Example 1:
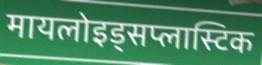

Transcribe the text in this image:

मायलोइड्सप्लास्टिक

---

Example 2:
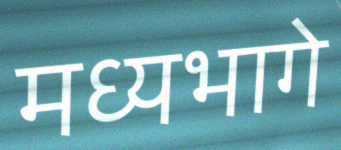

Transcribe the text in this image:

मध्यभागे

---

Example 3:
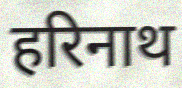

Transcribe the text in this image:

हरिनाथ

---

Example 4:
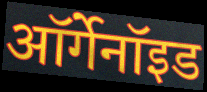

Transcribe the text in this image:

ऑर्गेनॉइड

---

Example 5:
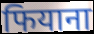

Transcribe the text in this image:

फियाना